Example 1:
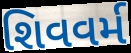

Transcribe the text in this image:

શિવવર્મ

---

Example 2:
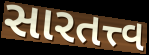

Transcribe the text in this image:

સારતત્ત્વ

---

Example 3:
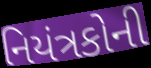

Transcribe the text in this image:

નિયંત્રકોની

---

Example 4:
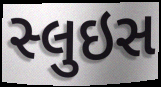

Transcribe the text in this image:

સ્લુઇસ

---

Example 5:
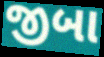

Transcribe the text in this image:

જીબા